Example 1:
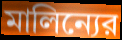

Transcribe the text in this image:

মালিন্যের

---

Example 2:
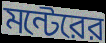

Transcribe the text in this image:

মন্টেরের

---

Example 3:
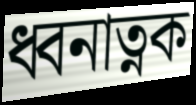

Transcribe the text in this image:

ধ্বনাত্নক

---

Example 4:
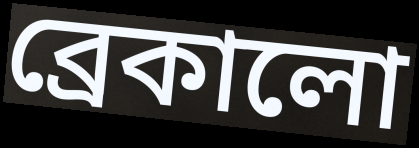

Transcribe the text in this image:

ব্রেকালো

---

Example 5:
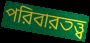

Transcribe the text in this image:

পরিবারতত্ত্ব